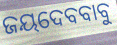
ଜୟଦେବବାବୁ